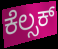
ಕೆಲ್ಸಕ್